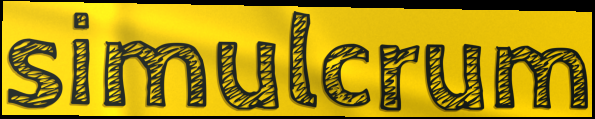
simulcrum